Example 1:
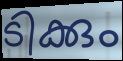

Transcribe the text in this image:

ടിക്കും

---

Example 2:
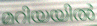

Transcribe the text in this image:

മറിയയിൽ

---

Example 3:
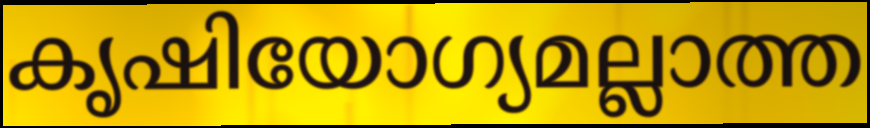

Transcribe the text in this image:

കൃഷിയോഗ്യമല്ലാത്ത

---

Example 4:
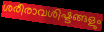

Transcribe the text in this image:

ശരീരാവശിഷ്ടങ്ങളും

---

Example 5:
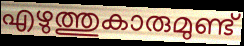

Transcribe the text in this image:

എഴുത്തുകാരുമുണ്ട്